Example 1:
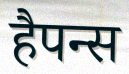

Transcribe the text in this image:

हैपन्स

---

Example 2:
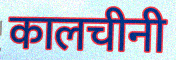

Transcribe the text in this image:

कालचीनी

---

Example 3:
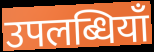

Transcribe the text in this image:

उपलब्धियाँ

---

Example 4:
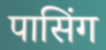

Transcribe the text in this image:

पासिंग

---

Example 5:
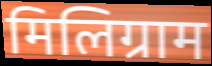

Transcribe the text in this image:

मिलिग्राम